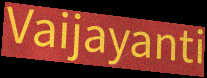
Vaijayanti